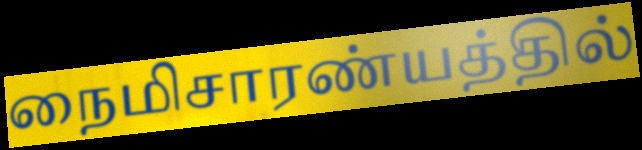
நைமிசாரண்யத்தில்